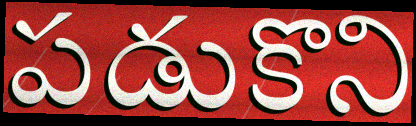
పడుకొని